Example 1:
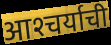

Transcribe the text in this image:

आश्चर्याची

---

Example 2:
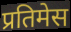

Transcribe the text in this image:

प्रतिमेस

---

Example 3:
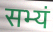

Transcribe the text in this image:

सभ्यं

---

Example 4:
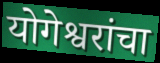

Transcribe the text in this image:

योगेश्वरांचा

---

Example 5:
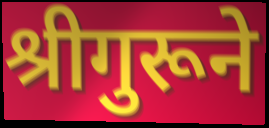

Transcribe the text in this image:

श्रीगुरूने